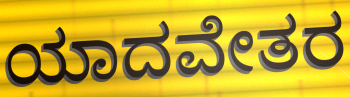
ಯಾದವೇತರ